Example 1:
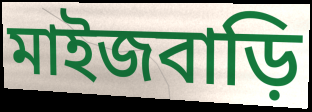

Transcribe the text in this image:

মাইজবাড়ি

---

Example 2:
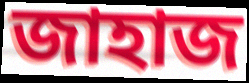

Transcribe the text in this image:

জাহাজ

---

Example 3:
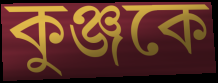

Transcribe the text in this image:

কুঞ্জকে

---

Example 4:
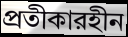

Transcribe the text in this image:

প্রতীকারহীন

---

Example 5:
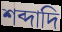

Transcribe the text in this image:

শব্দাদি